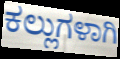
ಕಲ್ಲುಗಳಾಗಿ